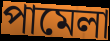
পামেলা